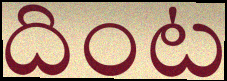
దింట